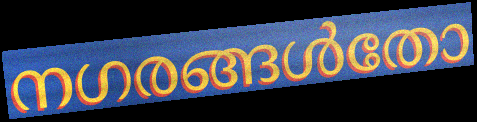
നഗരങ്ങൾതോ